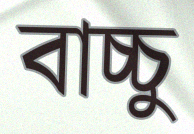
বাচ্চু